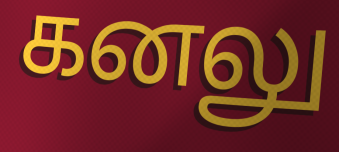
கனலு